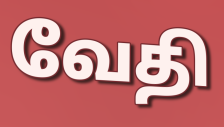
வேதி